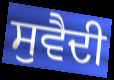
ਸੁਵੈਦੀ